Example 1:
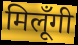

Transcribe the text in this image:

मिलूँगी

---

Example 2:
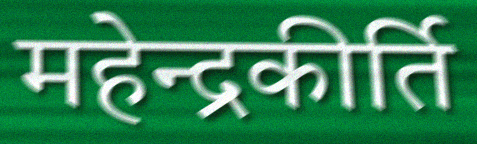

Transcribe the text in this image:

महेन्द्रकीर्ति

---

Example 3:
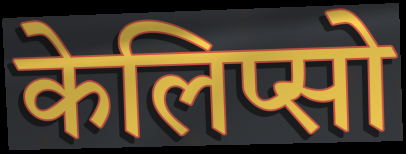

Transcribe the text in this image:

केलिप्सो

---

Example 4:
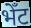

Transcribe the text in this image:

भेँट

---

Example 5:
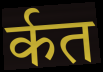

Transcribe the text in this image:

र्कत